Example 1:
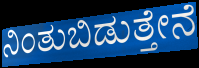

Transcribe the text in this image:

ನಿಂತುಬಿಡುತ್ತೇನೆ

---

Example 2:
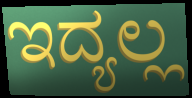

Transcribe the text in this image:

ಇದ್ಯಲ್ಲ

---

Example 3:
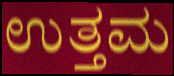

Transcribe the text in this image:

ಉತ್ತಮ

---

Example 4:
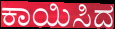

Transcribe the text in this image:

ಕಾಯಿಸಿದ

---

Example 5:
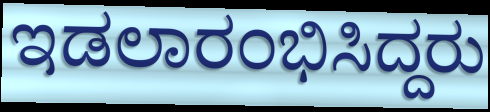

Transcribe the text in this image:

ಇಡಲಾರಂಭಿಸಿದ್ದರು